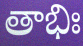
తాభిః